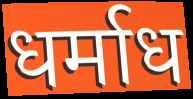
धर्माध